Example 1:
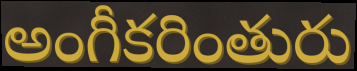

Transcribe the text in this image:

అంగీకరింతురు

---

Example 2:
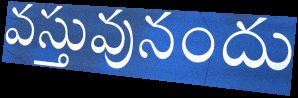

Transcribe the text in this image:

వస్తువునందు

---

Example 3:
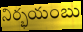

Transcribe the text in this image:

నిర్భయంబు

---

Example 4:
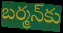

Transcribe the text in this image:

బర్మన్‌కు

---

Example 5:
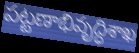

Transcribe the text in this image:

పట్టణాభివృద్ధిశాఖ